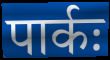
पार्कः